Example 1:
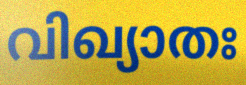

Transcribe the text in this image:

വിഖ്യാതഃ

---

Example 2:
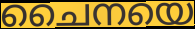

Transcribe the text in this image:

ചൈനയെ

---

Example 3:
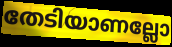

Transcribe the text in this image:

തേടിയാണല്ലോ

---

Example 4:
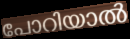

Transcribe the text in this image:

പോറിയാൽ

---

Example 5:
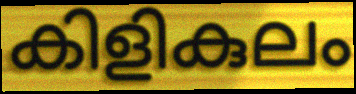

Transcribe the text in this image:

കിളികുലം